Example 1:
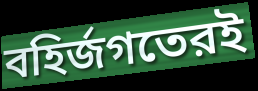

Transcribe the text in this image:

বহির্জগতেরই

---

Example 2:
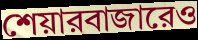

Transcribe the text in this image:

শেয়ারবাজারেও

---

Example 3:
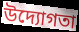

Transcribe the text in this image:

উদ্যোগতা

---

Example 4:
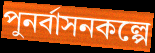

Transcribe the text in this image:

পুনর্বাসনকল্পে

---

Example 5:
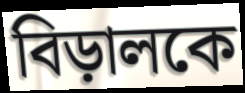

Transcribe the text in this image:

বিড়ালকে